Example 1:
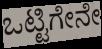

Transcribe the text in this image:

ಒಟ್ಟಿಗೇನೇ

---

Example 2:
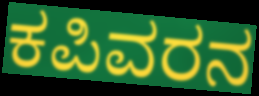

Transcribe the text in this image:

ಕಪಿವರನ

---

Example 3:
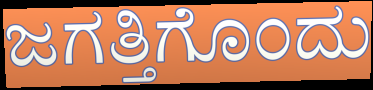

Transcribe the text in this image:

ಜಗತ್ತಿಗೊಂದು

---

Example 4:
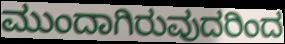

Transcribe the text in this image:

ಮುಂದಾಗಿರುವುದರಿಂದ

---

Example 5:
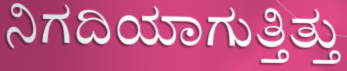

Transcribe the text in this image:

ನಿಗದಿಯಾಗುತ್ತಿತ್ತು